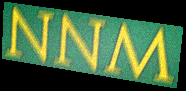
NNM